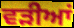
ਵੜੀਆਂ